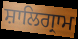
ਸ਼ਾਲਿਗ੍ਰਾਮ